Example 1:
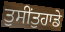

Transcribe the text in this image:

ਤੁਸੀਂਤੁਹਾਡੇ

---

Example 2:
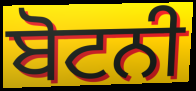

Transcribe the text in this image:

ਬੋਟਨੀ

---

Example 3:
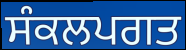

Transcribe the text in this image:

ਸੰਕਲਪਗਤ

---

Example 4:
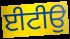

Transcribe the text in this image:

ਈਟੀਉ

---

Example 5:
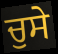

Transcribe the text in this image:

ਚੁਸੇ